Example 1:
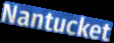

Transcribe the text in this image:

Nantucket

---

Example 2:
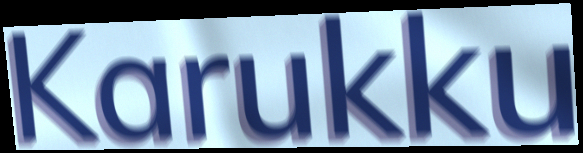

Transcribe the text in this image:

Karukku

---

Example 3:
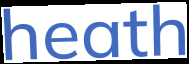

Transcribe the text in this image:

heath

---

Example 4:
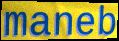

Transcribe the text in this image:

maneb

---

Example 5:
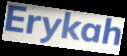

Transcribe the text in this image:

Erykah